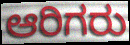
ಆರಿಗರು